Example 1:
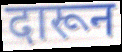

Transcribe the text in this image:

दारून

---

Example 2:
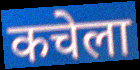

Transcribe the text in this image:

कचेला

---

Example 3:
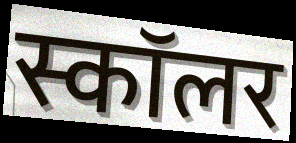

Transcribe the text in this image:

स्कॉलर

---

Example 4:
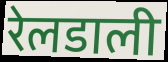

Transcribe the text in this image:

रेलडाली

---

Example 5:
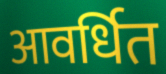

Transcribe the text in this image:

आवर्धित